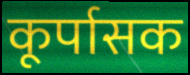
कूर्पासक